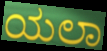
ಯಲಾ